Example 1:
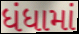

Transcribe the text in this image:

ધંધામાં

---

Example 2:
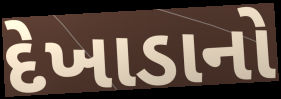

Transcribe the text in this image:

દેખાડાનો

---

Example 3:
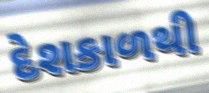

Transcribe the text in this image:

દેશકાળથી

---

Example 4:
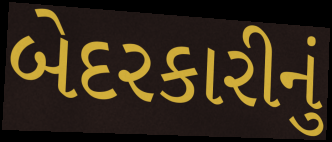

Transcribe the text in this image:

બેદરકારીનું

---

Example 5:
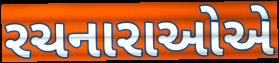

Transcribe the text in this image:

રચનારાઓએ